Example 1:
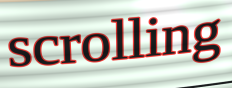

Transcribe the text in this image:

scrolling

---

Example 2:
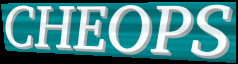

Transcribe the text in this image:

CHEOPS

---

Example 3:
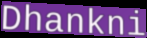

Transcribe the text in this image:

Dhankni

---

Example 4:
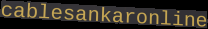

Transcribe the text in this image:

cablesankaronline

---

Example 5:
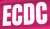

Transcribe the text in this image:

ECDC